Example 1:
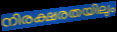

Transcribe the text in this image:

നിരക്ഷരതയിലും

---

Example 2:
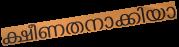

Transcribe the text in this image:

ക്ഷീണതനാക്കിയാ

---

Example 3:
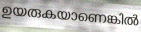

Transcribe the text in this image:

ഉയരുകയാണെങ്കിൽ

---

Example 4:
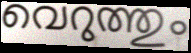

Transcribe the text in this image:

വെറുത്തും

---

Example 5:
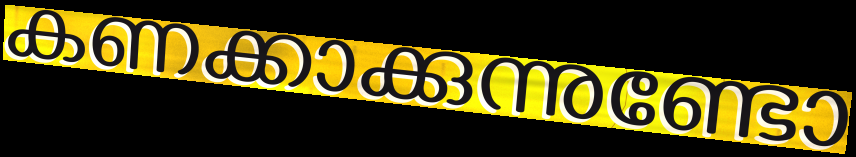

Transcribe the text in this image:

കണക്കാക്കുന്നുണ്ടോ